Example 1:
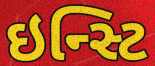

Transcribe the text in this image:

ઇન્સ્ટિ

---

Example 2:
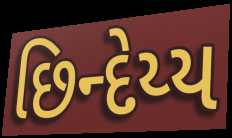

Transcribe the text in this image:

છિન્દેય્ય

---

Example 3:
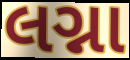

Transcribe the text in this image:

લગ્ના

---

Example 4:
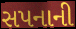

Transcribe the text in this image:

સપનાની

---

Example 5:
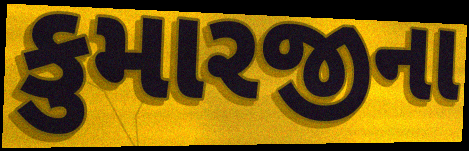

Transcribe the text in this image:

કુમારજીના